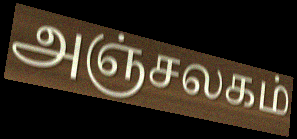
அஞ்சலகம்